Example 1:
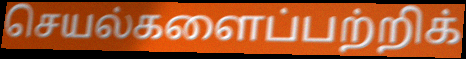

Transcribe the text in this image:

செயல்களைப்பற்றிக்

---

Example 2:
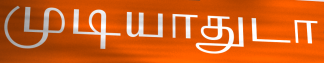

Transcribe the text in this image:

முடியாதுடா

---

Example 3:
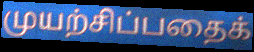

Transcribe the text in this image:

முயற்சிப்பதைக்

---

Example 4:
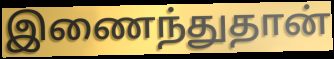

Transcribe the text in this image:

இணைந்துதான்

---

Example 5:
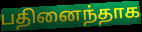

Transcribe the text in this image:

பதினைந்தாக